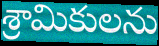
శ్రామికులను